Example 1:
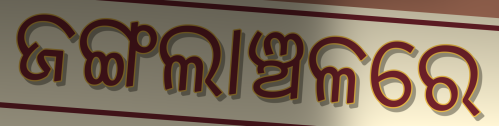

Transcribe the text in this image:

ଜଙ୍ଗଲାଞ୍ଚଳରେ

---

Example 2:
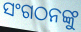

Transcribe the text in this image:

ସଂଗଠନଙ୍କୁ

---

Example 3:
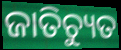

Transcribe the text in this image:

ଜାତିଚ୍ୟୁତ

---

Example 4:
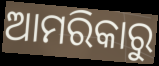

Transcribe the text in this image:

ଆମରିକାରୁ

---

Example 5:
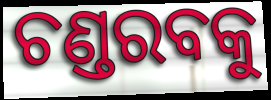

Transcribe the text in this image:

ଚଣ୍ଡରବକୁ